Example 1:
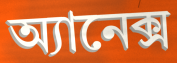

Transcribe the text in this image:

অ্যানেক্স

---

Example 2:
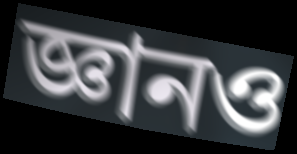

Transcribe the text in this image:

জ্ঞানও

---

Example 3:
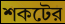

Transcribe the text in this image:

শকটের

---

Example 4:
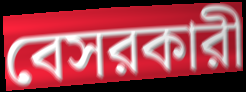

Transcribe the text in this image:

বেসরকারী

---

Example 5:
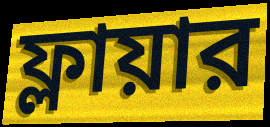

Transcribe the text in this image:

ফ্লায়ার